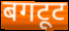
बगटूट